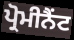
ਪ੍ਰੋਮੀਨੈਂਟ